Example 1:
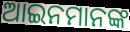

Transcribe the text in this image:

ଆଇନମାନଙ୍କ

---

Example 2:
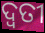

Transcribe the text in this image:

ଦ୍ଵତୀ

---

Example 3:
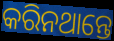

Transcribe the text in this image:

କରିନଥାନ୍ତେ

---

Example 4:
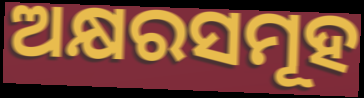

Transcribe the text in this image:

ଅକ୍ଷରସମୂହ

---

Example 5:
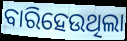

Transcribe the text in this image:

ବାରିହେଉଥିଲା